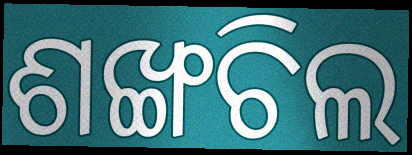
ଶଙ୍ଖଚିଲ